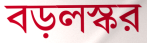
বড়লস্কর